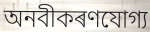
অনবীকৰণযোগ্য